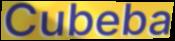
Cubeba